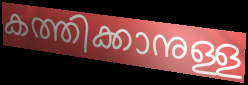
കത്തിക്കാനുള്ള